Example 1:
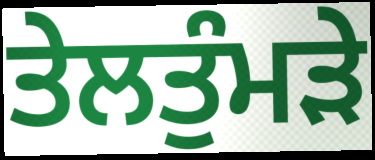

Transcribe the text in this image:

ਤੇਲਤੁੰਮੜੇ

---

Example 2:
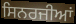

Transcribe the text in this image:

ਸਿਨਰਜੀਆਂ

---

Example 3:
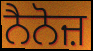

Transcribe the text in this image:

ਨੈਨੋਜ਼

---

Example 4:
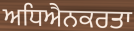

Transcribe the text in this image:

ਅਧਿਐਨਕਰਤਾ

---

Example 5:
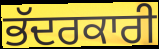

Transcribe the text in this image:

ਭੱਦਰਕਾਰੀ